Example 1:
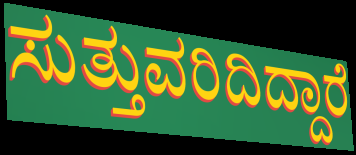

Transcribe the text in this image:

ಸುತ್ತುವರಿದಿದ್ದಾರೆ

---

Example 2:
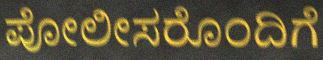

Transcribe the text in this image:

ಪೋಲೀಸರೊಂದಿಗೆ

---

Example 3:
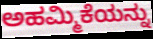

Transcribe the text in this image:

ಅಹಮ್ಮಿಕೆಯನ್ನು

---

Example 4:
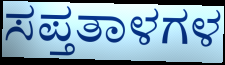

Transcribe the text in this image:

ಸಪ್ತತಾಳಗಳ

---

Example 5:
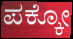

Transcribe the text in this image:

ಪಕ್ಕೋ